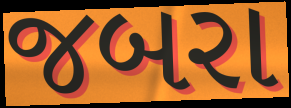
જબરા